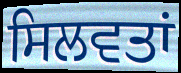
ਸਿਲਵਤਾਂ